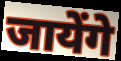
जायेंगे